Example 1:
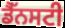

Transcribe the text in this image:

ਡੈੱਨਸਟੀ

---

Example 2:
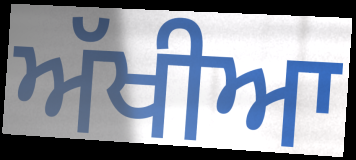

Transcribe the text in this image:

ਅੱਖੀਆ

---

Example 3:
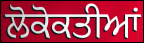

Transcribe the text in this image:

ਲੋਕੋਕਤੀਆਂ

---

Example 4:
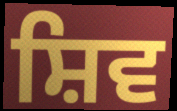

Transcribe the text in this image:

ਸ਼ਿਵ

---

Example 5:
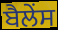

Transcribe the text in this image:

ਬੈਲੇਂਸ